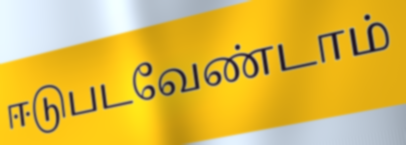
ஈடுபடவேண்டாம்